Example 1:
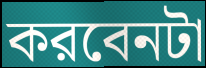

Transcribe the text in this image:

করবেনটা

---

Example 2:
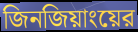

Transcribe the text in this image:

জিনজিয়াংয়ের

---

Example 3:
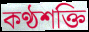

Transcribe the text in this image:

কণ্ঠশক্তি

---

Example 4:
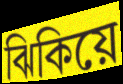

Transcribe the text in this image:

ঝিকিয়ে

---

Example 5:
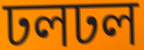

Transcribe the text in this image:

ঢলঢল